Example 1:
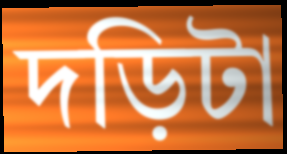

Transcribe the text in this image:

দড়িটা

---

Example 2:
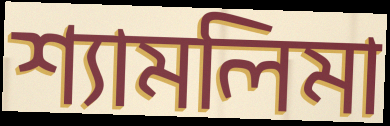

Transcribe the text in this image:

শ্যামলিমা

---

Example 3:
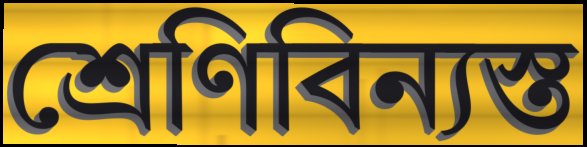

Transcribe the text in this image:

শ্রেণিবিন্যস্ত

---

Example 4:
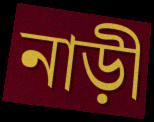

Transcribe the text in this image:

নাড়ী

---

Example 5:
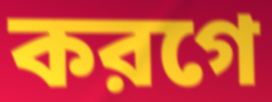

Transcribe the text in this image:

করগে